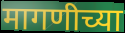
मागणीच्या